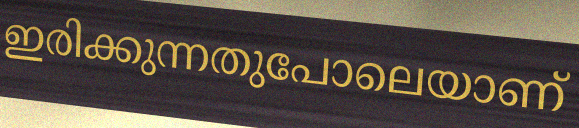
ഇരിക്കുന്നതുപോലെയാണ്